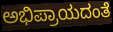
ಅಭಿಪ್ರಾಯದಂತೆ